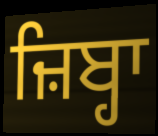
ਜ਼ਿਬ੍ਹਾ